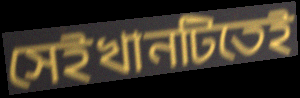
সেইখানটিতেই